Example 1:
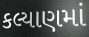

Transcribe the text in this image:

કલ્યાણમાં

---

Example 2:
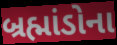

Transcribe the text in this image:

બ્રહ્માંડોના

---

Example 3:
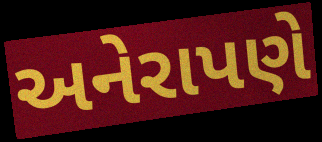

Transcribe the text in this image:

અનેરાપણે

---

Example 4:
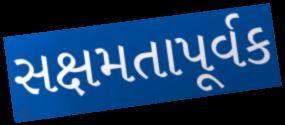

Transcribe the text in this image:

સક્ષમતાપૂર્વક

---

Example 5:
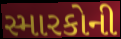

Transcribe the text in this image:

સ્મારકોની